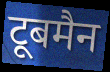
टूबमैन